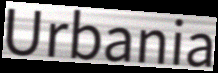
Urbania